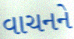
વાચનને